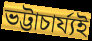
ভট্টাচাৰ্য্যই